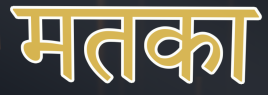
मतका